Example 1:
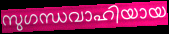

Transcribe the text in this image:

സുഗന്ധവാഹിയായ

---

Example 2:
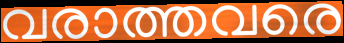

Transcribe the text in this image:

വരാത്തവരെ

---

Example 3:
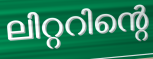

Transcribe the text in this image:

ലിറ്ററിന്റെ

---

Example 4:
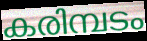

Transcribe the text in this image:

കരിമ്പടം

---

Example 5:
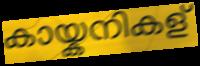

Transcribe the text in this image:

കായ്കനികള്